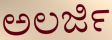
ಅಲರ್ಜಿ